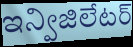
ఇన్విజిలేటర్